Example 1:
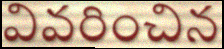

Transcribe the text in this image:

వివరించిన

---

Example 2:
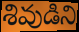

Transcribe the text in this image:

శివుడిని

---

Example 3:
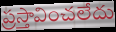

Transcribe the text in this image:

ప్రస్తావించలేదు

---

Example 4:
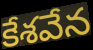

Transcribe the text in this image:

కేశవేన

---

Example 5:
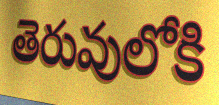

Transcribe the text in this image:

తెరువులోకి